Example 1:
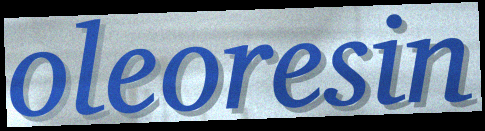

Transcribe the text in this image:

oleoresin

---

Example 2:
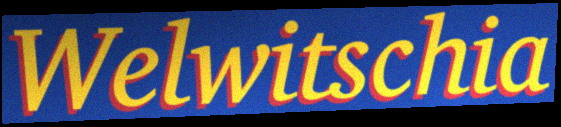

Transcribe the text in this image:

Welwitschia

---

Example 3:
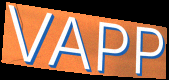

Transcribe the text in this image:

VAPP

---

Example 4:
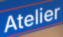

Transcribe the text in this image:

Atelier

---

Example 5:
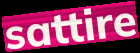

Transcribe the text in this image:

sattire